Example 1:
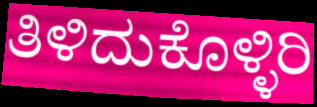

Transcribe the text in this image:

ತಿಳಿದುಕೊಳ್ಳಿರಿ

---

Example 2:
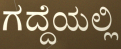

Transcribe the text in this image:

ಗದ್ದೆಯಲ್ಲಿ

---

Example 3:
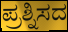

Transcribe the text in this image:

ಪ್ರಶ್ನಿಸದ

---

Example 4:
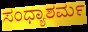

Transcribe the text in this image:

ಸಂಧ್ಯಾಶರ್ಮ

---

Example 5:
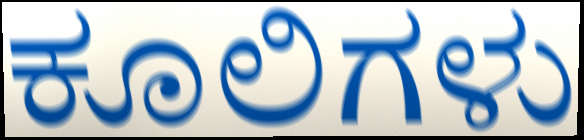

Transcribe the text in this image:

ಕೂಲಿಗಳು